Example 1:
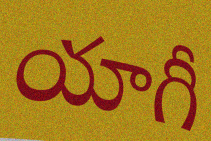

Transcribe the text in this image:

యాగీ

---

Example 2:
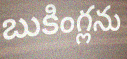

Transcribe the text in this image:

బుకింగ్లను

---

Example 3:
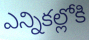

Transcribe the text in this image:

ఎన్నికల్లోకి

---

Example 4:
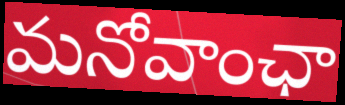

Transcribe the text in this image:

మనోవాంఛా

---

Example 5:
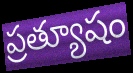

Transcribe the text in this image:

ప్రత్యూషం